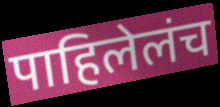
पाहिलेलंच